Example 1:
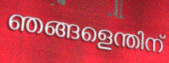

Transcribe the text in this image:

ഞങ്ങളെന്തിന്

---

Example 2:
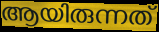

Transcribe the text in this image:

ആയിരുന്നത്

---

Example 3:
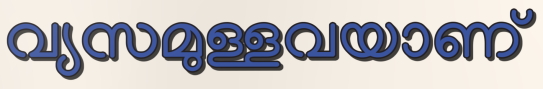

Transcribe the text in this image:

വ്യസമുള്ളവയാണ്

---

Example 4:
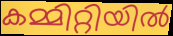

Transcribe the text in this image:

കമ്മിറ്റിയിൽ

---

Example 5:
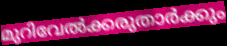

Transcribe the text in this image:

മുറിവേൽക്കരുതാർക്കും